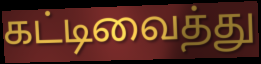
கட்டிவைத்து